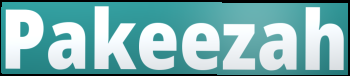
Pakeezah